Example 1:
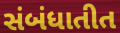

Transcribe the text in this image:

સંબંધાતીત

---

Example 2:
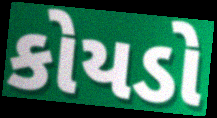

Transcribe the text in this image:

કોયડો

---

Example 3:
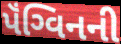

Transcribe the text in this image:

પૅંગ્વિનની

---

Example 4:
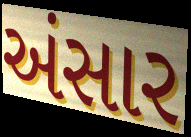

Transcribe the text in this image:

અંસાર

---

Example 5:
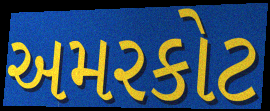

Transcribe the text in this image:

અમરકોટ